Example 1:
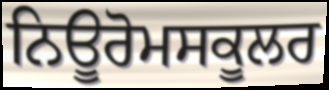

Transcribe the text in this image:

ਨਿਊਰੋਮਸਕੂਲਰ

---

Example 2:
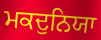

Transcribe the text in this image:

ਮਕਦੁਨਿਯਾ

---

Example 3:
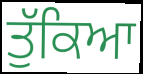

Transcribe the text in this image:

ਤੁੱਕਿਆ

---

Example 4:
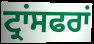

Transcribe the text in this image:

ਟ੍ਰਾਂਸਫਰਾਂ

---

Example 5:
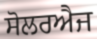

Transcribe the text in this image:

ਸੋਲਰਐਜ